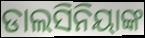
ଡାଲସିନିୟାଙ୍କ